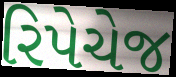
રિપેચેજ